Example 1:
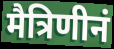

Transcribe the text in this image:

मैत्रिणीनं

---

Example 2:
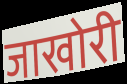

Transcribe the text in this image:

जाखोरी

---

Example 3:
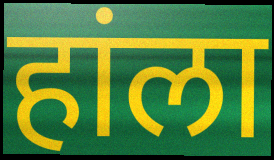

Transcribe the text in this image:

हांला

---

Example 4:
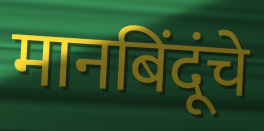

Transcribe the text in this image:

मानबिंदूंचे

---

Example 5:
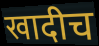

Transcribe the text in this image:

खादीच